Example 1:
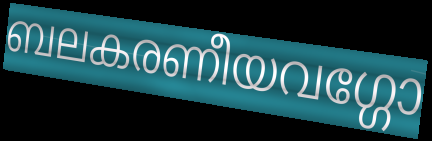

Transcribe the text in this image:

ബലകരണീയവഗ്ഗോ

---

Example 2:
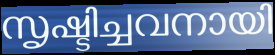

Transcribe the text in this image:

സൃഷ്ടിച്ചവനായി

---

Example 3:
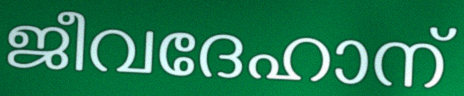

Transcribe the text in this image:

ജീവദേഹാന്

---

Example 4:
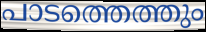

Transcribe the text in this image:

പാടത്തെത്തും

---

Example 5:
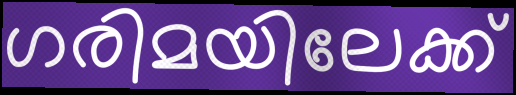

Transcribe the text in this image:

ഗരിമയിലേക്ക്